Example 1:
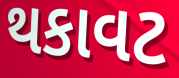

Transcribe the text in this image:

થકાવટ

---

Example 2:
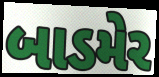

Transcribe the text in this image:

બાડમેર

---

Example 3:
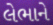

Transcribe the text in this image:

લેભાને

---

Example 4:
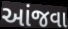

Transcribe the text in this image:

આંજવા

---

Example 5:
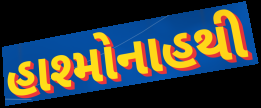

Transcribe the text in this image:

હાશ્મોનાહથી